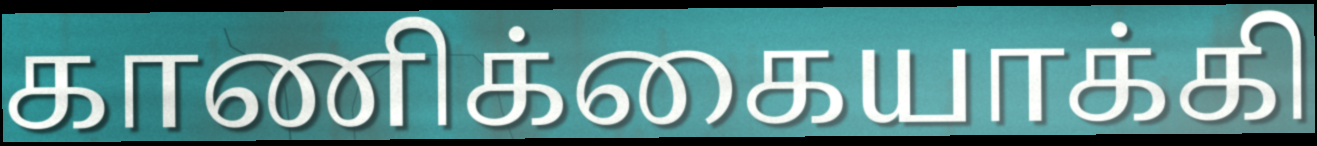
காணிக்கையாக்கி